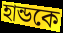
হান্ডকে